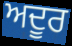
ਅਦੂਰ